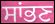
ਸਾਂਭਣ